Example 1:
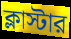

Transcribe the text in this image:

ক্লাস্টার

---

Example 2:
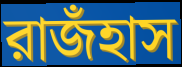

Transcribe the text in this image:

রাজঁহাস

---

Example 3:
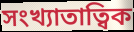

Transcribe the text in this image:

সংখ্যাতাত্বিক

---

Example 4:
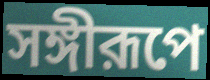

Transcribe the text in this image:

সঙ্গীরূপে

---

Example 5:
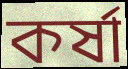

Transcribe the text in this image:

কর্ষা